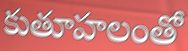
కుతూహలంతో